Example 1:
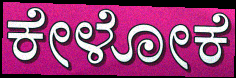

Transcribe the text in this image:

ಕೇಳೋಕೆ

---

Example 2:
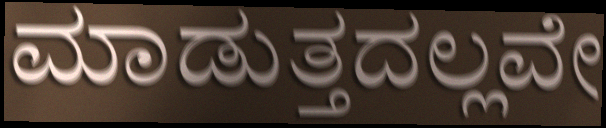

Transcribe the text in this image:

ಮಾಡುತ್ತದಲ್ಲವೇ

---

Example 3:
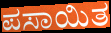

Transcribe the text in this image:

ಪಸಾಯಿತ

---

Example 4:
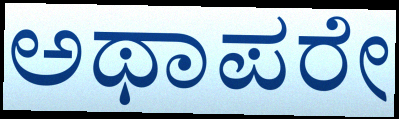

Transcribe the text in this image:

ಅಥಾಪರೇ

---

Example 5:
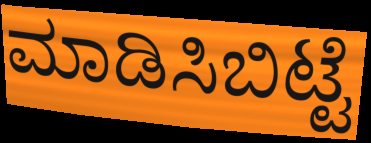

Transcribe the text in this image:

ಮಾಡಿಸಿಬಿಟ್ಟೆ